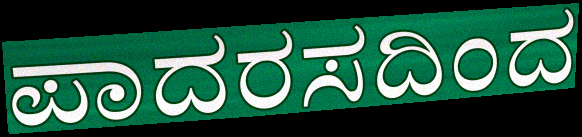
ಪಾದರಸದಿಂದ